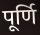
पूर्णि